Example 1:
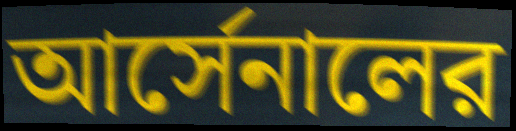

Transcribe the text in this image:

আর্সেনালের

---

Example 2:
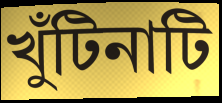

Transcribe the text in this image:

খুঁটিনাটি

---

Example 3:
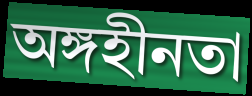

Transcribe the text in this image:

অঙ্গহীনতা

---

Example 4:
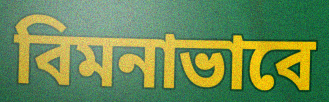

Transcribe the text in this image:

বিমনাভাবে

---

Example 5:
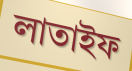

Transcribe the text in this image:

লাতাইফ